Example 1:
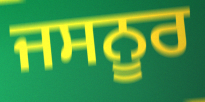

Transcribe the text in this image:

ਜਸਨੂਰ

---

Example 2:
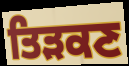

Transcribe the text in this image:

ਤਿੜਕਣ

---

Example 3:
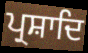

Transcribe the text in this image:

ਪ੍ਰਸ਼ਾਦਿ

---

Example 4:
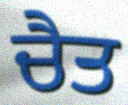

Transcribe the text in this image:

ਚੈਤ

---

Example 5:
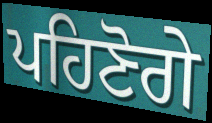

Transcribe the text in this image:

ਪਹਿਣੋਗੇ